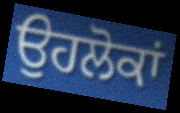
ਉਹਲੋਕਾਂ